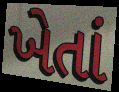
ખેતાં